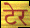
टेर